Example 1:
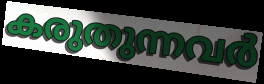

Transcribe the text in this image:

കരുതുന്നവർ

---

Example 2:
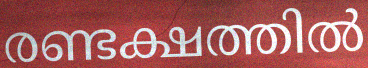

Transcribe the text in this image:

രണ്ടക്ഷത്തിൽ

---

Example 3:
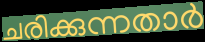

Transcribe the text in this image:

ചരിക്കുന്നതാർ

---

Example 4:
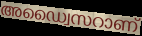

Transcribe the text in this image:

അഡ്വൈസറാണ്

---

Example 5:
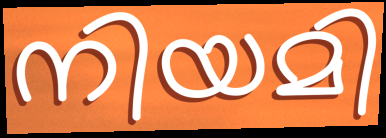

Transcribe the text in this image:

നിയമി